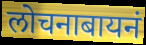
लोचनाबायनं